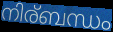
നിര്ബന്ധം